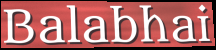
Balabhai